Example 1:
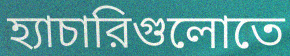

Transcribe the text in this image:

হ্যাচারিগুলোতে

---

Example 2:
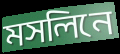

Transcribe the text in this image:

মসলিনে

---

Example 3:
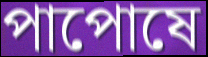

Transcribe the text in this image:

পাপোষে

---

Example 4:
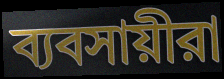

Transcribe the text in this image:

ব্যবসায়ীরা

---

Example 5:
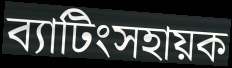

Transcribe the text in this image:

ব্যাটিংসহায়ক